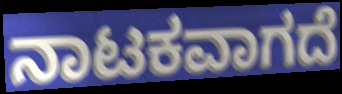
ನಾಟಕವಾಗದೆ